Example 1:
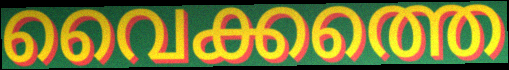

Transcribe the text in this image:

വൈക്കത്തെ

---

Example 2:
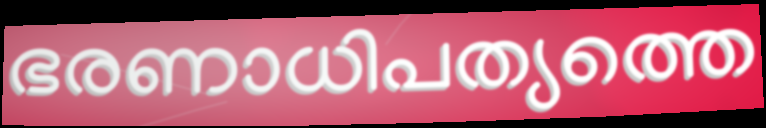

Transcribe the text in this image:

ഭരണാധിപത്യത്തെ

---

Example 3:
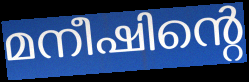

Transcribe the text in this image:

മനീഷിന്റെ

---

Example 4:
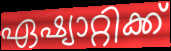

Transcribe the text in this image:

ഏഷ്യാറ്റിക്ക്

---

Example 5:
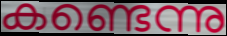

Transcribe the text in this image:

കണ്ടെന്നു